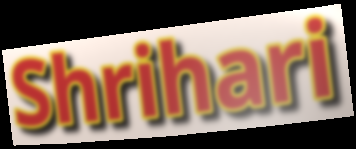
Shrihari